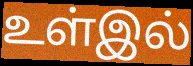
உள்இல்